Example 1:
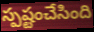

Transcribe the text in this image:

స్పష్టంచేసింది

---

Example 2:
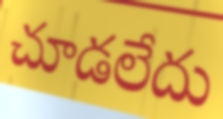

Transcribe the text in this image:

చూడలేదు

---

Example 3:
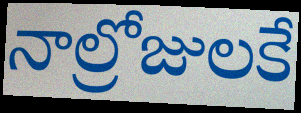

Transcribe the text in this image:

నాల్రోజులకే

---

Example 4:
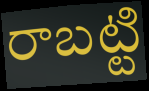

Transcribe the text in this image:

రాబట్టి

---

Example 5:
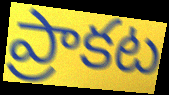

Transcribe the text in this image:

ప్రాకట